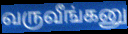
வருவீங்கனு